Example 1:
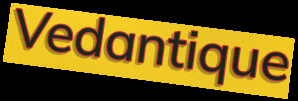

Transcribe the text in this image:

Vedantique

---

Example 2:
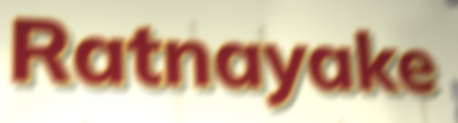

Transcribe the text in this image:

Ratnayake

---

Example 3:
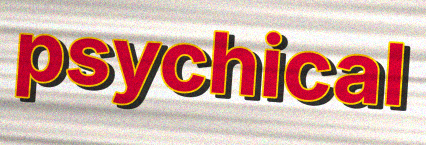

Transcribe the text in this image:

psychical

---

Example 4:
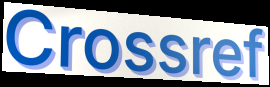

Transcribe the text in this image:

Crossref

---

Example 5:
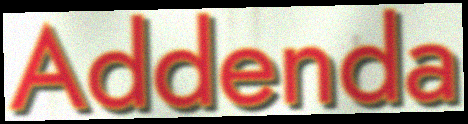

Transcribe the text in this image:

Addenda